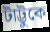
টাট্টুকে